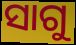
ସାଗୁ